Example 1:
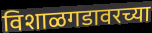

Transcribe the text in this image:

विशाळगडावरच्या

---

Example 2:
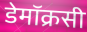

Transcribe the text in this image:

डेमॉक्रसी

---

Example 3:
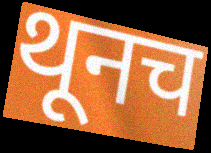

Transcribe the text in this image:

थूनच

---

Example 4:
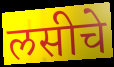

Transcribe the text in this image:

लसीचे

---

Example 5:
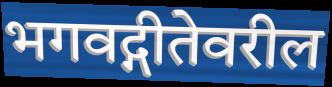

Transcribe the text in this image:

भगवद्गीतेवरील